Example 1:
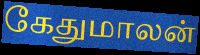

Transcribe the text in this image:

கேதுமாலன்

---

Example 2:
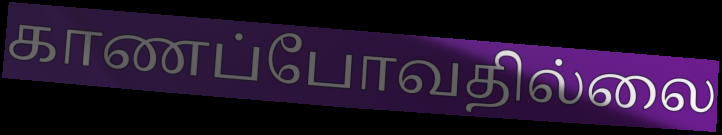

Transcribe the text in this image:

காணப்போவதில்லை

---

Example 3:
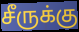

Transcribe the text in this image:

சீருக்கு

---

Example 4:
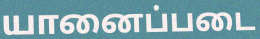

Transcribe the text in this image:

யானைப்படை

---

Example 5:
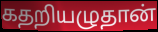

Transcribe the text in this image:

கதறியழுதான்